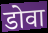
डोवा